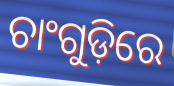
ଚାଂଗୁଡ଼ିରେ